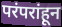
परंपरांहून